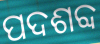
ପଦଶବ୍ଦ